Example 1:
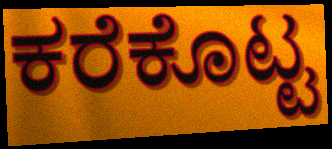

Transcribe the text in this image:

ಕರೆಕೊಟ್ಟ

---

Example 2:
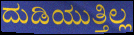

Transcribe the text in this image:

ದುಡಿಯುತ್ತಿಲ್ಲ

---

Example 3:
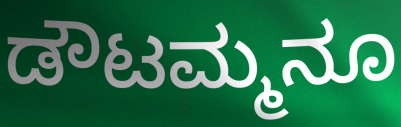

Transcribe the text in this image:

ಡೌಟಮ್ಮನೂ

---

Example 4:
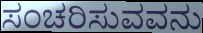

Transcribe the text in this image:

ಸಂಚರಿಸುವವನು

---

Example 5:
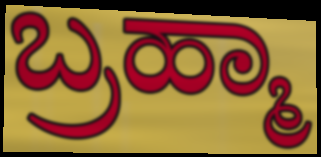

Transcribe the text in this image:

ಬ್ರಹ್ಮಾ